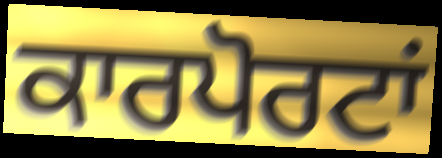
ਕਾਰਪੋਰਟਾਂ